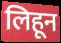
लिहून